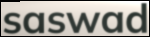
saswad